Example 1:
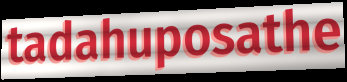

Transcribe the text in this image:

tadahuposathe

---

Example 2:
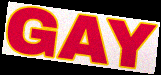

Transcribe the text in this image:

GAY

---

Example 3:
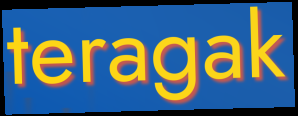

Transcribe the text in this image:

teragak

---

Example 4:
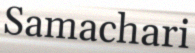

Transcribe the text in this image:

Samachari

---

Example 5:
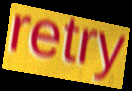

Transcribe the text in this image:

retry